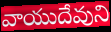
వాయుదేవుని